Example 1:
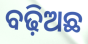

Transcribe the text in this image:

ବଢ଼ିଅଛ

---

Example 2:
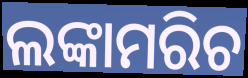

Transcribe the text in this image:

ଲଙ୍କାମରିଚ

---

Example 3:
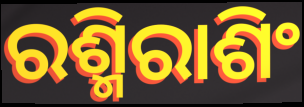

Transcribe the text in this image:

ରଶ୍ମିରାଶିଂ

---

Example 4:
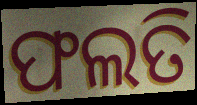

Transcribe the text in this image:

ଫଲତି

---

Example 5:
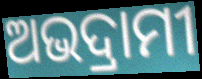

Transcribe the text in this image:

ଅଭଦ୍ରାମୀ